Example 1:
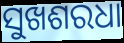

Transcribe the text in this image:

ସୁଖଶରଧା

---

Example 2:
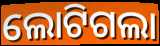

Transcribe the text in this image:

ଲୋଟିଗଲା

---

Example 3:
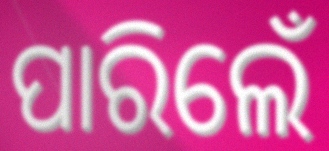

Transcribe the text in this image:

ପାରିଲେଁ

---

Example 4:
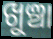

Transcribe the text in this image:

ଖୁଞ୍ଚା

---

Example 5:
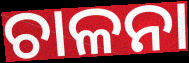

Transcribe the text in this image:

ଚାଳନା